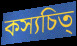
কস্যচিত্